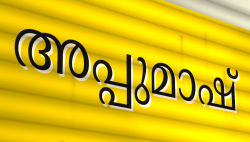
അപ്പുമാഷ്